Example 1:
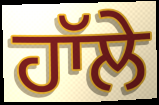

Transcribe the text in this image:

ਹਾੱਲੇ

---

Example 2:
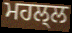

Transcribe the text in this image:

ਮਹਲ੍ਲ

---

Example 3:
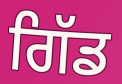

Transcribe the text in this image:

ਗਿੱਡ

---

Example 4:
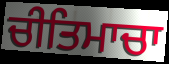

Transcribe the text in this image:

ਚੀਤਿਮਾਚਾ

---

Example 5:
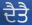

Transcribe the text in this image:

ਦੈਤੈ